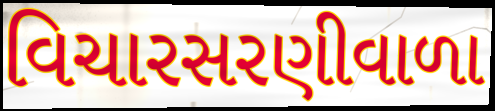
વિચારસરણીવાળા